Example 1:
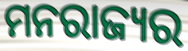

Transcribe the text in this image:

ମନରାଜ୍ୟର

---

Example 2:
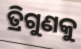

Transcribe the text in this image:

ତ୍ରିଗୁଣକୁ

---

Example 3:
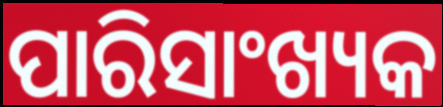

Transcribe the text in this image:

ପାରିସାଂଖ୍ୟକ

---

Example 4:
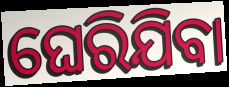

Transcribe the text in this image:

ଘେରିଯିବା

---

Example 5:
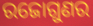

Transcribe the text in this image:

ରଜୋଗୁଣର